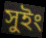
সুইং